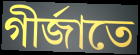
গীর্জাতে